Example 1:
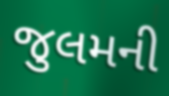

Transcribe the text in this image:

જુલમની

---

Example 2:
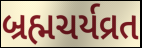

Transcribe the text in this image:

બ્રહ્મચર્યવ્રત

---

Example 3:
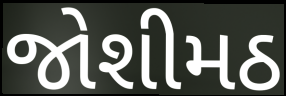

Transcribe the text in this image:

જોશીમઠ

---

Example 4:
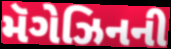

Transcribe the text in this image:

મૅગેઝિનની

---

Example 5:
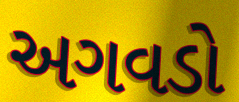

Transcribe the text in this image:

અગવડો